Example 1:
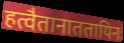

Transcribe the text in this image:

हत्वैतानाततायिनः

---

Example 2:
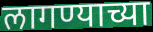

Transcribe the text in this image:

लागण्याच्या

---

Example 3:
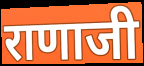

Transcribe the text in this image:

राणाजी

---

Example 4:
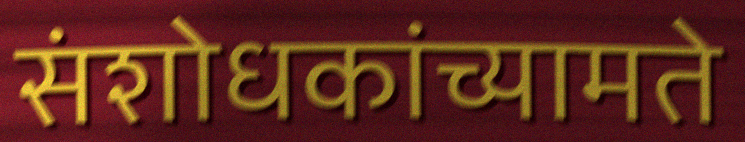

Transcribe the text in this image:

संशोधकांच्यामते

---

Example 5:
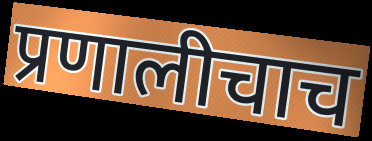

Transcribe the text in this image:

प्रणालीचाच